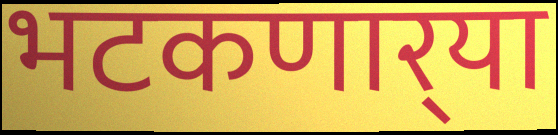
भटकणार्‍या